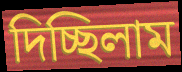
দিচ্ছিলাম